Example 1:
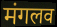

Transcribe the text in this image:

मंगलव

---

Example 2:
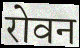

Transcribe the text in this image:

रोवन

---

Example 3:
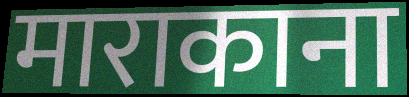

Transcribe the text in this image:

माराकाना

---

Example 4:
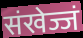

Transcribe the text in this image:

संखेज्जं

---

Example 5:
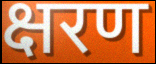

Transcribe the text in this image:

क्षरण